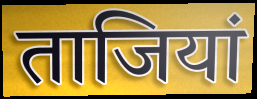
ताजियां